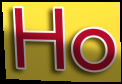
Ho